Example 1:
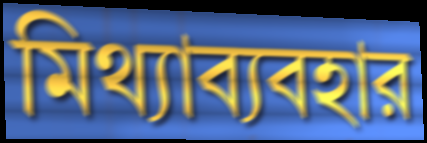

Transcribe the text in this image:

মিথ্যাব্যবহার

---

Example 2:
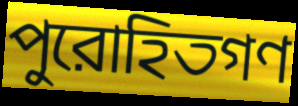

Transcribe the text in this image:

পুরোহিতগণ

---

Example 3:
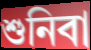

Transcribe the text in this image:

শুনিবা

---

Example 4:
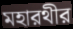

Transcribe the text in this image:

মহারথীর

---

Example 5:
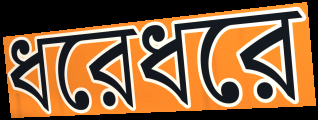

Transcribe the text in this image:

ধরেধরে